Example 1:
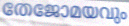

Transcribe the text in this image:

തേജോമയവും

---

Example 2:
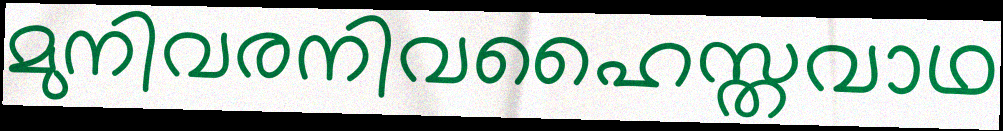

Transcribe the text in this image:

മുനിവരനിവഹൈസ്തവാഥ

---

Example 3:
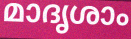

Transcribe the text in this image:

മാദൃശാം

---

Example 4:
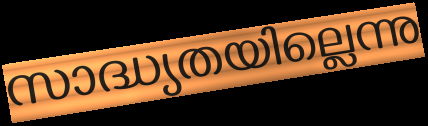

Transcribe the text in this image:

സാദ്ധ്യതയില്ലെന്നു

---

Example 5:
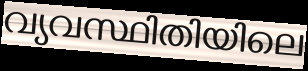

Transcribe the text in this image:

വ്യവസ്ഥിതിയിലെ